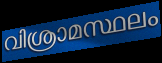
വിശ്രാമസ്ഥലം